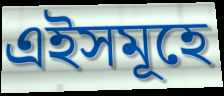
এইসমূহে